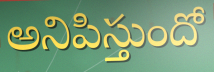
అనిపిస్తుందో